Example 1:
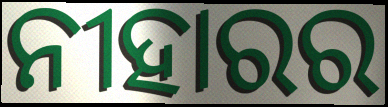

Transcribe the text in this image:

ନୀହାରର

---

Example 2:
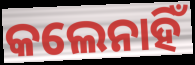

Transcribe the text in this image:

କଲେନାହିଁ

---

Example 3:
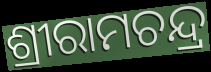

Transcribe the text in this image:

ଶ୍ରୀରାମଚନ୍ଦ୍ର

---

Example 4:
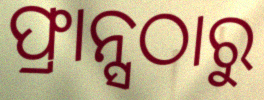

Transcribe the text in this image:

ଫ୍ରାନ୍ସଠାରୁ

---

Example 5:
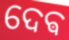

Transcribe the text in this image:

ଦେଵ